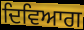
ਦਿਵਿਆਗ